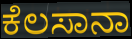
ಕೆಲಸಾನಾ